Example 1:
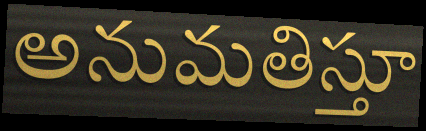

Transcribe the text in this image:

అనుమతిస్తూ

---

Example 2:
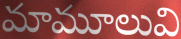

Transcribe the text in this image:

మామూలువి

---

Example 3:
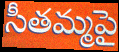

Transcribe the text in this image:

సీతమ్మపై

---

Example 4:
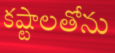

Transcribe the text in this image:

కష్టాలతోను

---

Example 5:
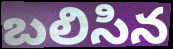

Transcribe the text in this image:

బలిసిన